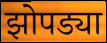
झोपड्या